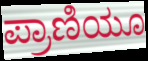
ಪ್ರಾಣಿಯೂ